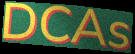
DCAs